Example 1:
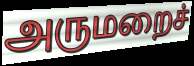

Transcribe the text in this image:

அருமறைச்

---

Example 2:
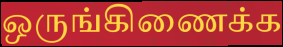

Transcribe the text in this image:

ஒருங்கிணைக்க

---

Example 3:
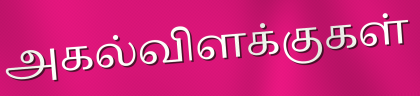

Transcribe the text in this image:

அகல்விளக்குகள்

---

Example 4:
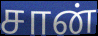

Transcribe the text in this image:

சான்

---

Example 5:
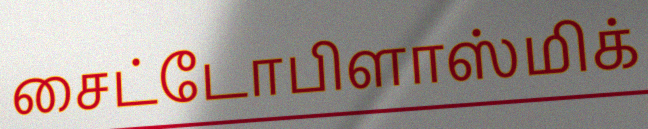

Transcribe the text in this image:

சைட்டோபிளாஸ்மிக்